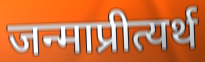
जन्माप्रीत्यर्थ